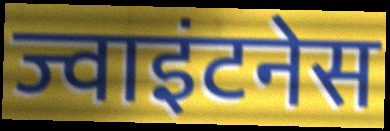
ज्वाइंटनेस